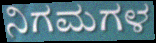
ನಿಗಮಗಳ